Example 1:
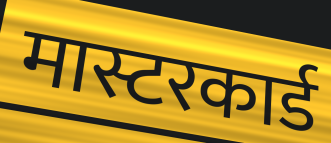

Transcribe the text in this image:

मास्टरकार्ड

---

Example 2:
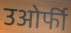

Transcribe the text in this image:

उओर्फी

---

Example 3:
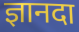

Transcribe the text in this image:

ज्ञानदा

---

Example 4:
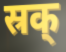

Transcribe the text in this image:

स्रक्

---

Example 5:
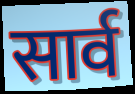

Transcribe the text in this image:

सार्व